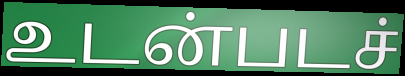
உடன்படச்